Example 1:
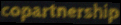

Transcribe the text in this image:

copartnership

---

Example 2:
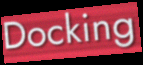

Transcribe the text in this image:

Docking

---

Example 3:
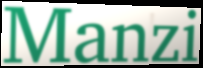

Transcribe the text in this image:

Manzi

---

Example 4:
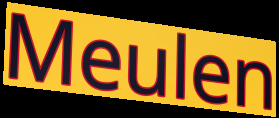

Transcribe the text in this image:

Meulen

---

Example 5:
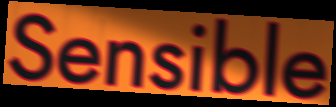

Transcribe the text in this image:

Sensible